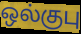
ஒல்குபு